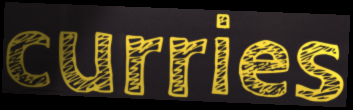
curries